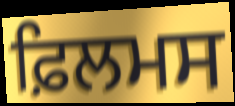
ਫ਼ਿਲਮਸ